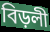
বিড়লী